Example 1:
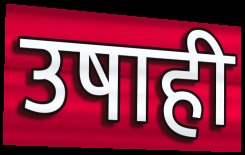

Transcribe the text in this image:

उषाही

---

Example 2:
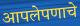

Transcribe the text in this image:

आपलेपणाचे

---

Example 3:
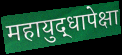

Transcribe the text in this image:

महायुद्धापेक्षा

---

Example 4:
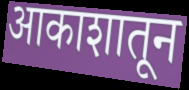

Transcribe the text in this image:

आकाशातून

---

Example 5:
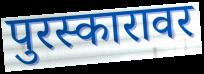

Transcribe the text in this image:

पुरस्कारावर